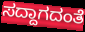
ಸದ್ದಾಗದಂತೆ